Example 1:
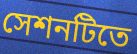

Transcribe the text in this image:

সেশনটিতে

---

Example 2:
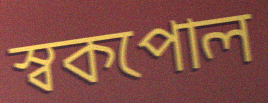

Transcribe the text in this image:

স্বকপোল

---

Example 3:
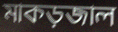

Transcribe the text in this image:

মাকড়জাল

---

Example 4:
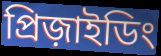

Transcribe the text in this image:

প্রিজ়াইডিং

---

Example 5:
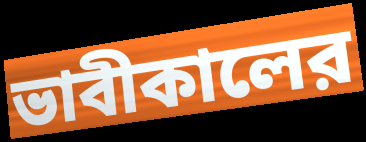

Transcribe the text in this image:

ভাবীকালের